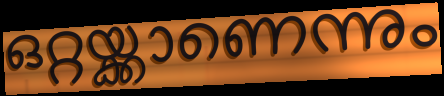
ഒറ്റയ്ക്കാണെന്നും